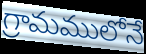
గ్రామములోనే